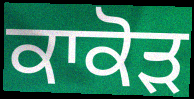
ਕਾਕੋੜ